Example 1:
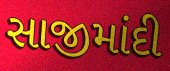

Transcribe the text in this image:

સાજીમાંદી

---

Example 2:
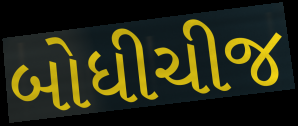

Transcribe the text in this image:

બોધીચીજ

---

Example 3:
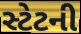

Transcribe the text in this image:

સ્ટેટની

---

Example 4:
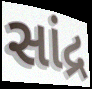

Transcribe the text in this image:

સાંદ્ર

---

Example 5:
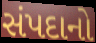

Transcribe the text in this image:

સંપદાનો